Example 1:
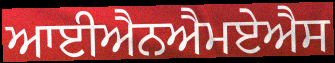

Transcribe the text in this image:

ਆਈਐਨਐਮਏਐਸ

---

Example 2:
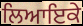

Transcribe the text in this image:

ਲਿਆਇਕੇ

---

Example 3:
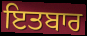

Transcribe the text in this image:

ਇਤਬਾਰ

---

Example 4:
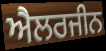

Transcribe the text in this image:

ਐਲਰਜੀਨ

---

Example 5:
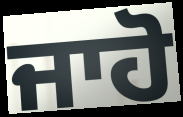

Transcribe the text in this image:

ਜਾਹੋ